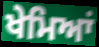
ਖੇਮਿਆਂ